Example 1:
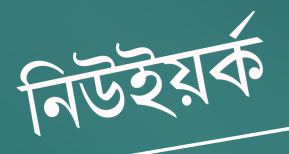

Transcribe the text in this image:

নিউইয়র্ক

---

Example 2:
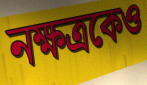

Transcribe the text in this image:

নক্ষত্রকেও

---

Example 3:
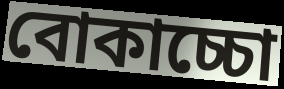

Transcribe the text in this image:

বোকাচ্চো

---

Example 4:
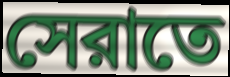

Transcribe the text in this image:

সেরাতে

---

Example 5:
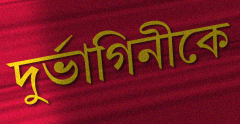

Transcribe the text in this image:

দুর্ভাগিনীকে